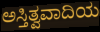
ಅಸ್ತಿತ್ವವಾದಿಯ